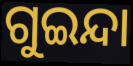
ଗୁଇନ୍ଦା